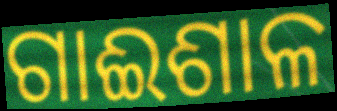
ଗାଈଶାଳ